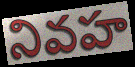
నివహ